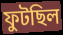
ফুটছিল